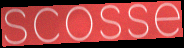
scosse